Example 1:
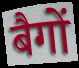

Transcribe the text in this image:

बैगों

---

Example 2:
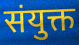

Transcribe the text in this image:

संयुक्त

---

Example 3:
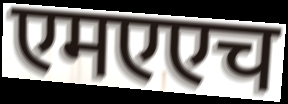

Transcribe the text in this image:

एमएएच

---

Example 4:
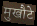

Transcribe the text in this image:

मुखौटे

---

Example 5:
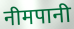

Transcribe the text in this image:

नीमपानी